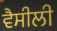
ਵੈਸੀਲੀ